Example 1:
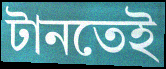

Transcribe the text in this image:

টানতেই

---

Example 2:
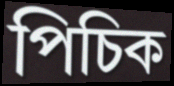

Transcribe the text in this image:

পিচিক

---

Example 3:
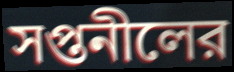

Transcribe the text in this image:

সপ্তনীলের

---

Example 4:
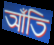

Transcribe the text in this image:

আঁতি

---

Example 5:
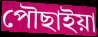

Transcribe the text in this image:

পৌছাইয়া